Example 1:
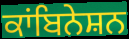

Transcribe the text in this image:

ਕਾਂਬਿਨੇਸ਼ਨ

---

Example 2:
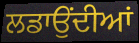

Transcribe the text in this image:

ਲਡਾਉਂਦੀਆਂ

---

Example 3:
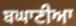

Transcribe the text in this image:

ਬਘਾਣੀਆ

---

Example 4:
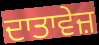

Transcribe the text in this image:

ਦਾਤਾਵੇਜ਼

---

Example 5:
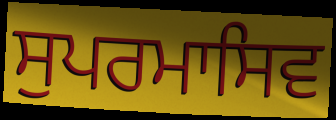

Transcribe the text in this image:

ਸੁਪਰਮਾਸਿਵ